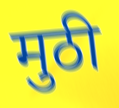
मुठी